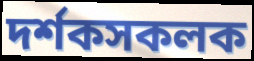
দৰ্শকসকলক